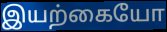
இயற்கையோ